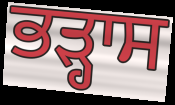
ਭੜ੍ਹਾਸ